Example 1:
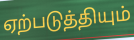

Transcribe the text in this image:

ஏற்படுத்தியும்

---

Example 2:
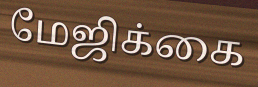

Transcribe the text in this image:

மேஜிக்கை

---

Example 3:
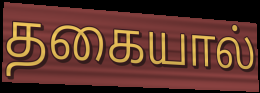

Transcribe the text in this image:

தகையால்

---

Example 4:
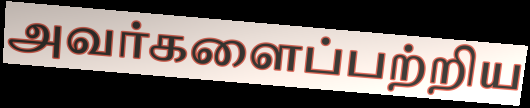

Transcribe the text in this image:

அவர்களைப்பற்றிய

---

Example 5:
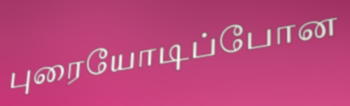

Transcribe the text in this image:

புரையோடிப்போன